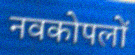
नवकोपलों